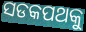
ସଡକପଥକୁ